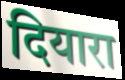
दियारा